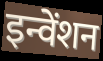
इन्वेंशन